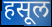
हसूल